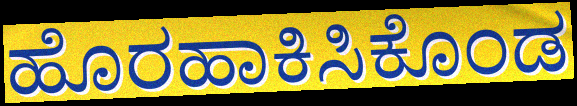
ಹೊರಹಾಕಿಸಿಕೊಂಡ